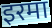
इरमा